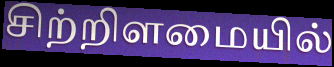
சிற்றிளமையில்